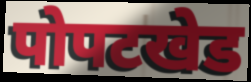
पोपटखेड